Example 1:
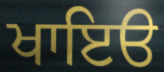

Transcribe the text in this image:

ਖਾਇੳ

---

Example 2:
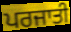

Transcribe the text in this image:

ਪਰਜਾਤੀ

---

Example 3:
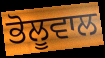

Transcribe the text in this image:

ਭੋਲੂਵਾਲ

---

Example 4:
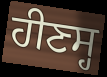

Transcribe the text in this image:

ਹੀਣਸ੍ਹ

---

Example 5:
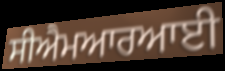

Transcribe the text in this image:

ਸੀਐਮਆਰਆਈ